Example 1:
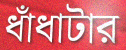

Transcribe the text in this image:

ধাঁধাটার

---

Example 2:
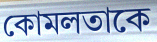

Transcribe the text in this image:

কোমলতাকে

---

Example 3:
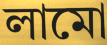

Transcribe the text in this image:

লামো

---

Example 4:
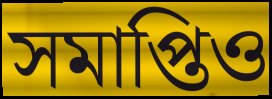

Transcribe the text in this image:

সমাপ্তিও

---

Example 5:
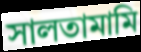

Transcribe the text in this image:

সালতামামি